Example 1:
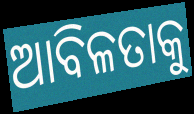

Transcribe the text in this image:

ଆବିଳତାକୁ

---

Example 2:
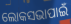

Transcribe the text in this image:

ଲୋକସଭାପାଇଁ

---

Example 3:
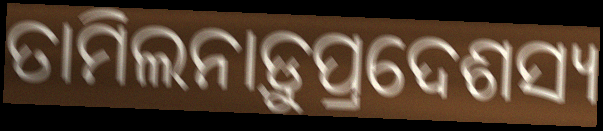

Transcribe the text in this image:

ତାମିଲନାଡ଼ୁପ୍ରଦେଶସ୍ୟ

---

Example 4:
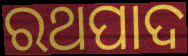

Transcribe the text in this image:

ରଥପାଦ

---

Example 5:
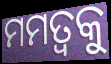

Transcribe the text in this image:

ମମତ୍ୱକୁ